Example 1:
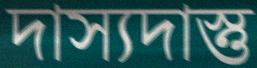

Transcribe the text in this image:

দাস্যদাস্তু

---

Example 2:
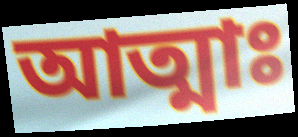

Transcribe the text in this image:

আত্মাঃ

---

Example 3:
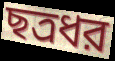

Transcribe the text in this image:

ছত্রধর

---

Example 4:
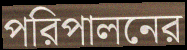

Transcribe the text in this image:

পরিপালনের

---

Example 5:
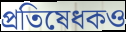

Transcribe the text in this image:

প্রতিষেধকও